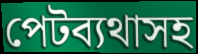
পেটব্যথাসহ